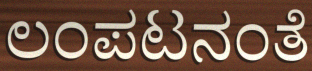
ಲಂಪಟನಂತೆ